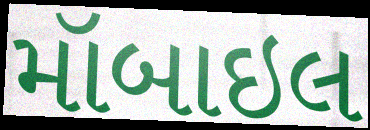
મૉબાઇલ